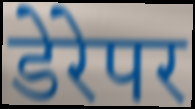
डेरेपर